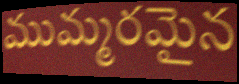
ముమ్మరమైన